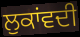
ਲੁਕਾਂਵਦੀ